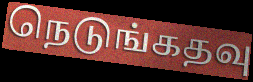
நெடுங்கதவு